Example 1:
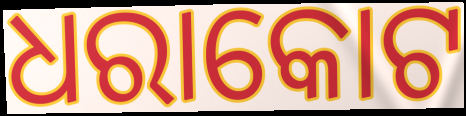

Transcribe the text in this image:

ଧରାକୋଟ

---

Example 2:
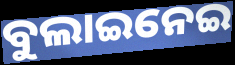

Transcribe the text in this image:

ବୁଲାଇନେଇ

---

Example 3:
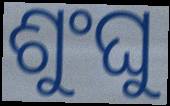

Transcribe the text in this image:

ଶୁଂଘୁ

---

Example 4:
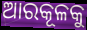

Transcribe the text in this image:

ଆରକୂଳକୁ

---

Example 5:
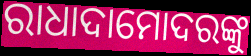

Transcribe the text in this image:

ରାଧାଦାମୋଦରଙ୍କୁ